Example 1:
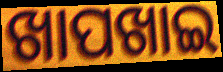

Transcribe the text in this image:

ଖାପଖାଇ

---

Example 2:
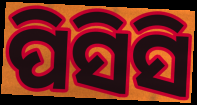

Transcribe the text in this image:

ପିସିସି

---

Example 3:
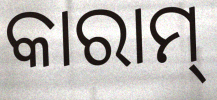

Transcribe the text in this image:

କାରାମ୍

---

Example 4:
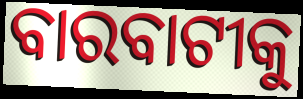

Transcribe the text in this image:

ବାରବାଟୀକୁ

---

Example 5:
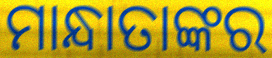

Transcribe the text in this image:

ମାନ୍ଧାତାଙ୍କର